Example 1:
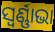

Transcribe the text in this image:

ସ୍ୱର୍ଣ୍ଣାଭା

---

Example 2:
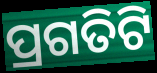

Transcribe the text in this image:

ପ୍ରଗତିଟି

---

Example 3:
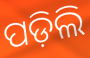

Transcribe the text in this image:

ପଡ଼ିଲି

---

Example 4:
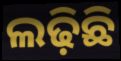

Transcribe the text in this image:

ଲଢ଼ିଛି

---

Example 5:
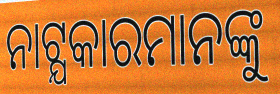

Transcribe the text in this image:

ନାଟ୍ଯକାରମାନଙ୍କୁ